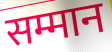
सम्मान